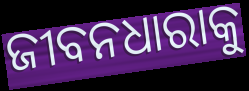
ଜୀବନଧାରାକୁ